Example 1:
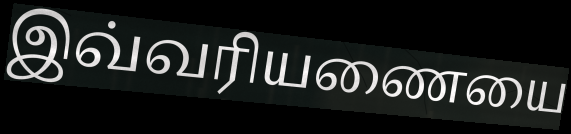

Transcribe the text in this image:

இவ்வரியணையை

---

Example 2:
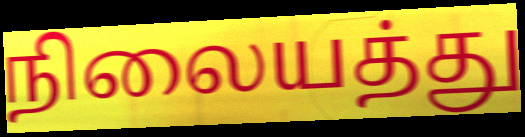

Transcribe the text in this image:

நிலையத்து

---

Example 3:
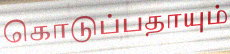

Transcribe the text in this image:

கொடுப்பதாயும்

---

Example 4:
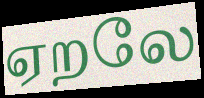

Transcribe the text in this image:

ஏறலே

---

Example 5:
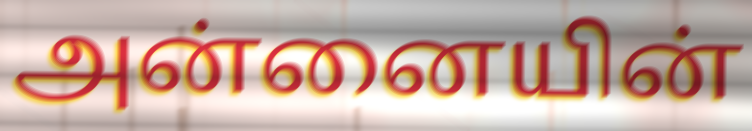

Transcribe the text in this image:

அன்னையின்